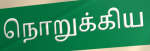
நொறுக்கிய